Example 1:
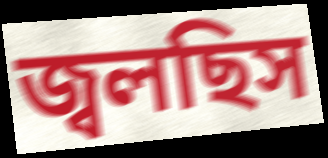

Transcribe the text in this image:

জ্বলছিস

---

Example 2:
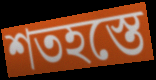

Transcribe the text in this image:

শতহস্তে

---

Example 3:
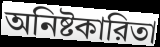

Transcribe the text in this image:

অনিষ্টকারিতা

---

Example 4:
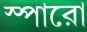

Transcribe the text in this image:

স্পারো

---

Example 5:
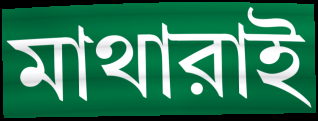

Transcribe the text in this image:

মাথারাই